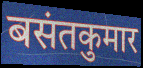
बसंतकुमार